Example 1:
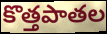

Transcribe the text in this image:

కొత్తపాతల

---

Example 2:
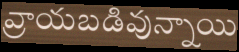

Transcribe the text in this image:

వ్రాయబడివున్నాయి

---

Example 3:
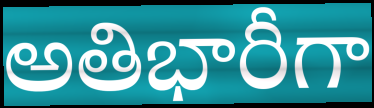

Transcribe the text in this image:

అతిభారీగా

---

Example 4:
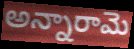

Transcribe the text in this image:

అన్నారామె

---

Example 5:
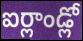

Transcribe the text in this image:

ఐర్లాండ్లో